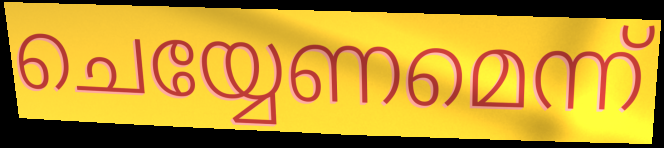
ചെയ്യേണമെന്ന്